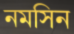
নমসিন